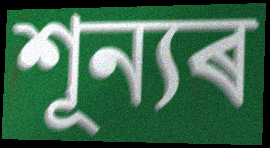
শূন্যৰ